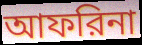
আফরিনা